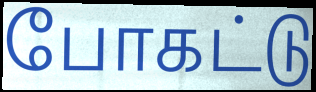
போகட்டு